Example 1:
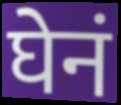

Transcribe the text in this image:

घेनं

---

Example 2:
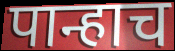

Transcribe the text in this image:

पान्हाच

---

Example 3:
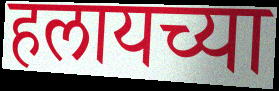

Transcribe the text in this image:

हलायच्या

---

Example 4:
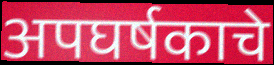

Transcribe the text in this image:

अपघर्षकाचे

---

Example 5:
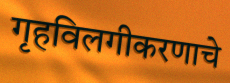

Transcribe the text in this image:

गृहविलगीकरणाचे